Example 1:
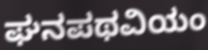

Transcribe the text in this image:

ಘನಪಥವಿಯಂ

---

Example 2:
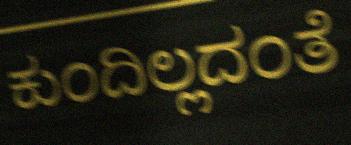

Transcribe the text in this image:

ಕುಂದಿಲ್ಲದಂತೆ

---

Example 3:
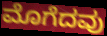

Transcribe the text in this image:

ಮೊಗೆದವು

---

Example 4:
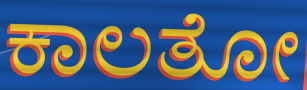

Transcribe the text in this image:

ಕಾಲತೋ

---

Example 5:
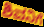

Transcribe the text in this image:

ಶಿವನಿಗೆ